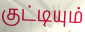
குட்டியும்